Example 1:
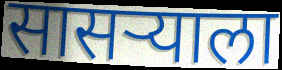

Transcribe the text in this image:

सासऱ्याला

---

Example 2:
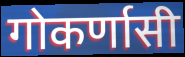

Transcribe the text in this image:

गोकर्णासी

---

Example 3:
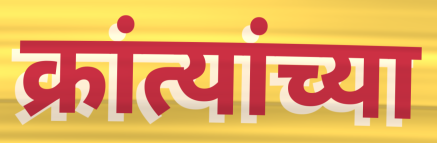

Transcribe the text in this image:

क्रांत्यांच्या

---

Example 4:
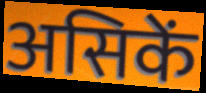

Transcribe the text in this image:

असिकें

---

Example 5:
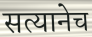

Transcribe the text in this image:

सत्यानेच